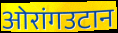
ओरांगउटान